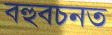
বহুবচনত